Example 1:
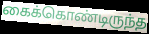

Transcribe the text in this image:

கைக்கொண்டிருந்த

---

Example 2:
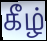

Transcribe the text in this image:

கீழ்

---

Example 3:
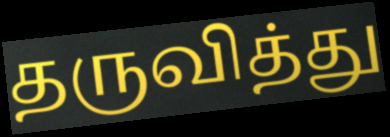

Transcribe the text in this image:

தருவித்து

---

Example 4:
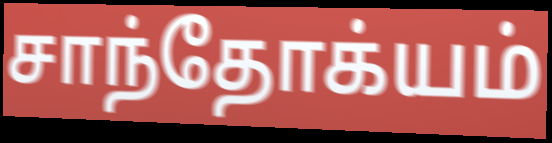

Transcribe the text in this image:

சாந்தோக்யம்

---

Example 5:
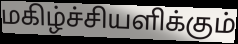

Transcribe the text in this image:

மகிழ்ச்சியளிக்கும்